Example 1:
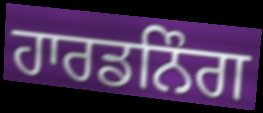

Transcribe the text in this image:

ਹਾਰਡਨਿੰਗ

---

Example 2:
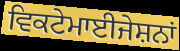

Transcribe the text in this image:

ਵਿਕਟੇਮਾਈਜੇਸ਼ਨਾਂ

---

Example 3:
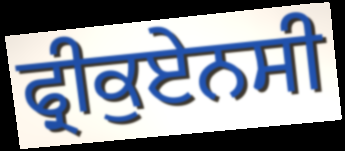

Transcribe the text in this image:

ਫ੍ਰੀਕੁਏਨਸੀ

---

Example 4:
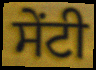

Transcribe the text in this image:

ਸੇਂਟੀ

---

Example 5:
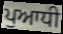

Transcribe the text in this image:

ਪੁਆਧੀ